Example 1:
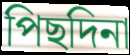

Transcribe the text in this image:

পিছদিনা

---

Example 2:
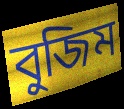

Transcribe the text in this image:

বুজিম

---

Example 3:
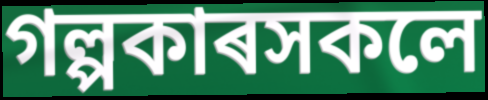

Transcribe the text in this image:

গল্পকাৰসকলে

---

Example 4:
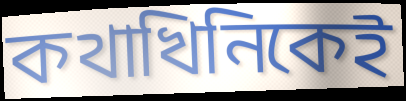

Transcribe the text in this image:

কথাখিনিকেই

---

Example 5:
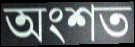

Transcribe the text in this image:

অংশত